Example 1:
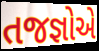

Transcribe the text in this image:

તજજ્ઞોએ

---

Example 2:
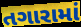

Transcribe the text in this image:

તગારામાં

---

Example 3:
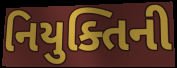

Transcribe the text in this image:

નિયુક્તિની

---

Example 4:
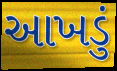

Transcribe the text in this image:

આખડું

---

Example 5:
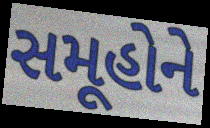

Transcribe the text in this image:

સમૂહોને